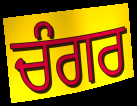
ਚੰਗਰ